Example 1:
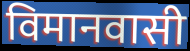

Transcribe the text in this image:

विमानवासी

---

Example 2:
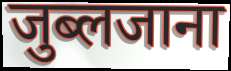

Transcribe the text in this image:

जुब्लजाना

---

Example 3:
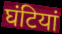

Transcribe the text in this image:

घंटियां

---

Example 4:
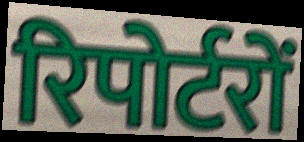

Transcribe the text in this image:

रिपोर्टरों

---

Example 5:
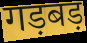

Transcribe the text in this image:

गड़बड़